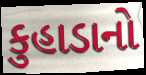
કુહાડાનો